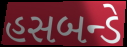
હસબન્ડે